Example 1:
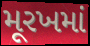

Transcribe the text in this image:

મૂરખમાં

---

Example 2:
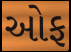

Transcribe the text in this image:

ઓફ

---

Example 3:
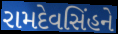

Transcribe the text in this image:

રામદેવસિંહને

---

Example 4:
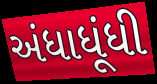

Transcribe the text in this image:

અંધાધૂંધી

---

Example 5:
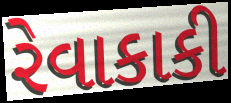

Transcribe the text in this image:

રેવાકાકી